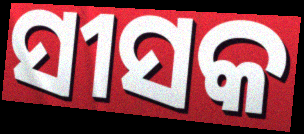
ସୀସକ